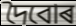
দৈবোৰ